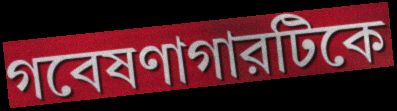
গবেষণাগারটিকে